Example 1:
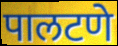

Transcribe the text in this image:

पालटणे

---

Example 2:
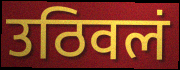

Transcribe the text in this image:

उठिवलं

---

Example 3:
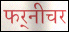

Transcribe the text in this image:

फर्नीचर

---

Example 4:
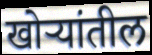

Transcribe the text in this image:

खोऱ्यांतील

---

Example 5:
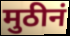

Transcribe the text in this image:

मुठीनं